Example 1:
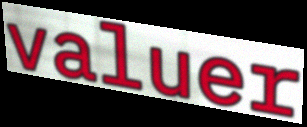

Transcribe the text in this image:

valuer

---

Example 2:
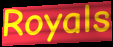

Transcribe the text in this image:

Royals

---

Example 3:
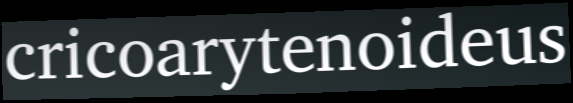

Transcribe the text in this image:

cricoarytenoideus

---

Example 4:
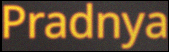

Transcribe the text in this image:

Pradnya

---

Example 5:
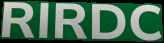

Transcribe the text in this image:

RIRDC